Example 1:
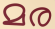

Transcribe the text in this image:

മര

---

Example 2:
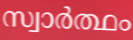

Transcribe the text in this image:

സ്വാർത്ഥം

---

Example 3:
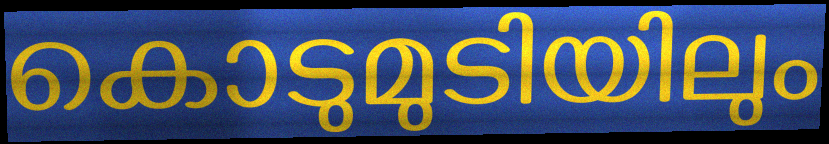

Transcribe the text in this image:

കൊടുമുടിയിലും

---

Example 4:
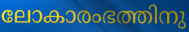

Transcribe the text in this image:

ലോകാരംഭത്തിനു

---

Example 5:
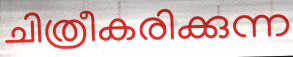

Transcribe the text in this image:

ചിത്രീകരിക്കുന്ന